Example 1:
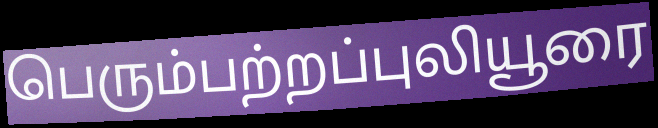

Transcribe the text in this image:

பெரும்பற்றப்புலியூரை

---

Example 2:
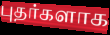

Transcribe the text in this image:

புதர்களாக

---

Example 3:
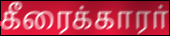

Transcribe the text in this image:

கீரைக்காரர்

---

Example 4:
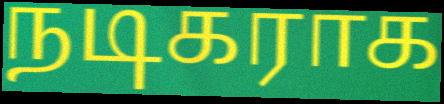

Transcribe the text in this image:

நடிகராக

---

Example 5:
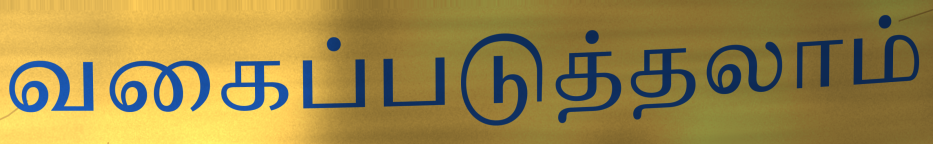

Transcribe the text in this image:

வகைப்படுத்தலாம்